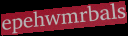
epehwmrbals